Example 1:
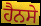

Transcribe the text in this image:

ਹੈਨਸੇ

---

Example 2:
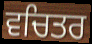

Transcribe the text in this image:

ਵਚਿਤਰ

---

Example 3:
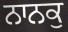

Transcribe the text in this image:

ਨਾਨਕੁ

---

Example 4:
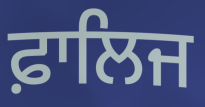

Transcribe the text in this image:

ਫ਼ਾਲਿਜ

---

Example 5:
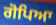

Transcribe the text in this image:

ਗੋਪਿਆ